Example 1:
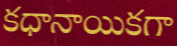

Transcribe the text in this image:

కధానాయికగా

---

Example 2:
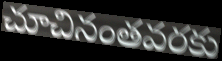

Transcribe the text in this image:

చూచినంతవరకు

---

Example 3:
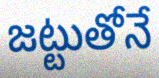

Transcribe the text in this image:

జట్టుతోనే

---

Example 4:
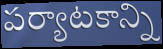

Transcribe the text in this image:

పర్యాటకాన్ని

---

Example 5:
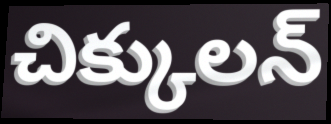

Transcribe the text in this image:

చిక్కులన్